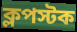
ক্লপস্টক